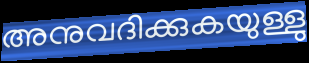
അനുവദിക്കുകയുള്ളു